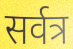
सर्वत्र